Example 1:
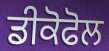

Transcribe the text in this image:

ਡੀਕੋਫੋਲ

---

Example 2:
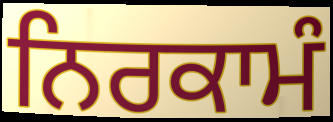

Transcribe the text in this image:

ਨਿਰਕਾਮੰ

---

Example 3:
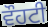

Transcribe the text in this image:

ਵੌਹਟੀ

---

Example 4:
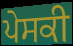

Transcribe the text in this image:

ਪੇਸਕੀ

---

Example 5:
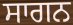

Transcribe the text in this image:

ਸਾਗਨ